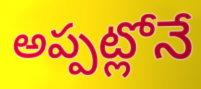
అప్పట్లోనే